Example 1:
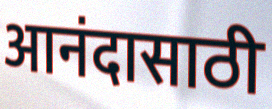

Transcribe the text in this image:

आनंदासाठी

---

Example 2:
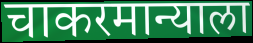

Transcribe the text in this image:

चाकरमान्याला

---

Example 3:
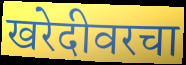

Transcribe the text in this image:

खरेदीवरचा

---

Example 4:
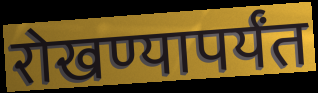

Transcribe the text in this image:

रोखण्यापर्यंत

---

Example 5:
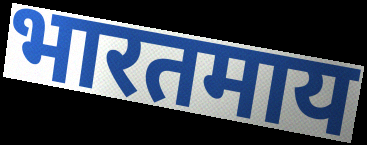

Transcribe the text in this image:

भारतमाय